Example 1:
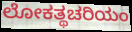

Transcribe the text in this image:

ಲೋಕತ್ಥಚರಿಯಂ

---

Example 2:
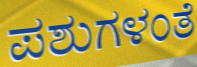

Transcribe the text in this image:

ಪಶುಗಳಂತೆ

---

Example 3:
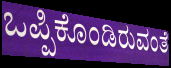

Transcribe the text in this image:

ಒಪ್ಪಿಕೊಂಡಿರುವಂತೆ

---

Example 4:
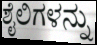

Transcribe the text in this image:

ಶೈಲಿಗಳನ್ನು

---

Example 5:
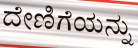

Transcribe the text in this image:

ದೇಣಿಗೆಯನ್ನು